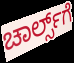
ಚಾರ್ಲ್ಸ್‌ಗೆ